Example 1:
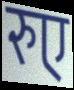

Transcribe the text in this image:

रुए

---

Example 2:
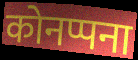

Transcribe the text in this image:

कोनप्पना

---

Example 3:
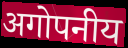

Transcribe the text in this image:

अगोपनीय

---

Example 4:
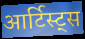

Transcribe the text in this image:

आर्टिस्ट्स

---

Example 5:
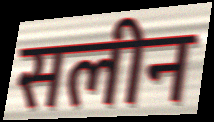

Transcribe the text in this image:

सलीन